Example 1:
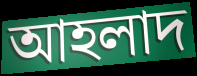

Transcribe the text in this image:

আহলাদ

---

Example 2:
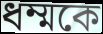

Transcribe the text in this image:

ধম্মকে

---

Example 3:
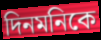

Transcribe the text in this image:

দিনমনিকে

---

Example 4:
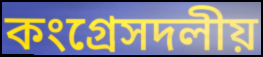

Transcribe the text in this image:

কংগ্রেসদলীয়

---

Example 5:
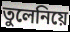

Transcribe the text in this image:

তুলেনিয়ে